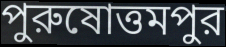
পুরুষোত্তমপুর